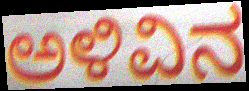
ಅಳಿವಿನ